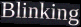
Blinking